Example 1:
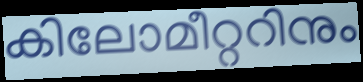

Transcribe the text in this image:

കിലോമീറ്ററിനും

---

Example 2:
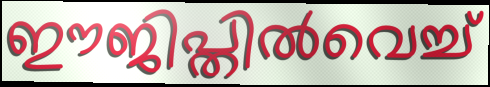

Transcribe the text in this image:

ഈജിപ്തിൽവെച്ച്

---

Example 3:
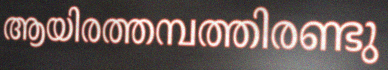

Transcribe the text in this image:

ആയിരത്തമ്പത്തിരണ്ടു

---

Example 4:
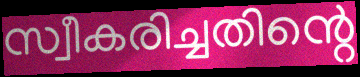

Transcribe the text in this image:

സ്വീകരിച്ചതിന്റെ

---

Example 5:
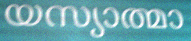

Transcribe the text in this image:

യസ്യാത്മാ